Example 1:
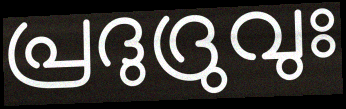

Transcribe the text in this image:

പ്രദുദ്രുവുഃ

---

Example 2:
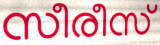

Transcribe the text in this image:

സീരീസ്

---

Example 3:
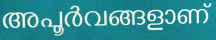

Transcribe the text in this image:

അപൂർവങ്ങളാണ്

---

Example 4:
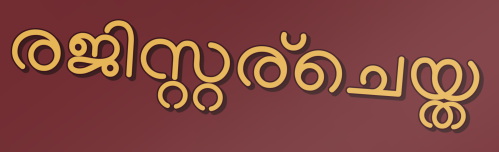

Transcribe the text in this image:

രജിസ്റ്റര്ചെയ്ത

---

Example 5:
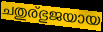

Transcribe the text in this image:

ചതുര്ഭുജയായ